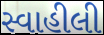
સ્વાહીલી